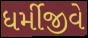
ધર્મીજીવે